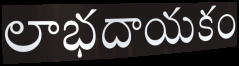
లాభదాయకం